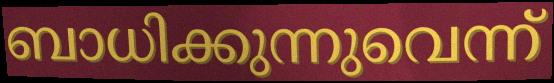
ബാധിക്കുന്നുവെന്ന്